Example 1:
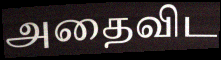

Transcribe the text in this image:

அதைவிட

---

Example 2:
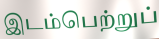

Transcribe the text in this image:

இடம்பெற்றுப்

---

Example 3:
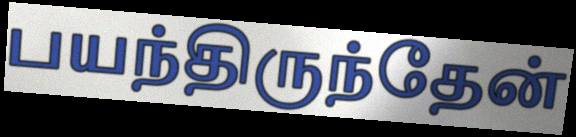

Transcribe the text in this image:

பயந்திருந்தேன்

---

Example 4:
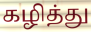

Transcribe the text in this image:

கழித்து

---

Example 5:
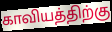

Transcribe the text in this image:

காவியத்திற்கு